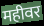
महीवर